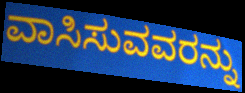
ವಾಸಿಸುವವರನ್ನು